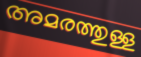
അമരത്തുള്ള